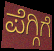
ಪೆಗ್ಗಿಗೆ